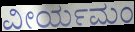
ವೀರ್ಯಮಂ